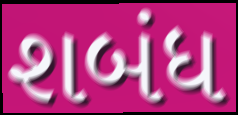
શબંધ